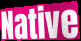
Native